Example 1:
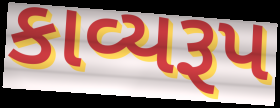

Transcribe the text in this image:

કાવ્યરૂપ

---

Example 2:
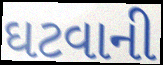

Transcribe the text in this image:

ઘટવાની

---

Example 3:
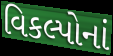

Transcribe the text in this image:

વિકલ્પોનાં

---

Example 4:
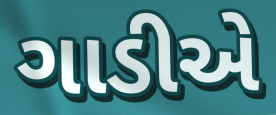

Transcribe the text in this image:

ગાડીએ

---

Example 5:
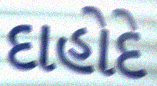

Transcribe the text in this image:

દાહોદે